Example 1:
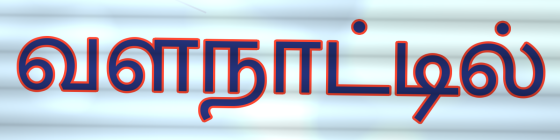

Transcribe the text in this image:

வளநாட்டில்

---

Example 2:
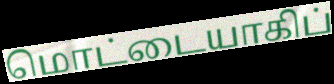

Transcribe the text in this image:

மொட்டையாகிப்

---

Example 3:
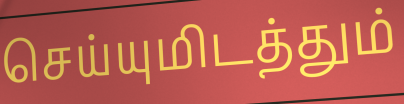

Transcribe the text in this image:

செய்யுமிடத்தும்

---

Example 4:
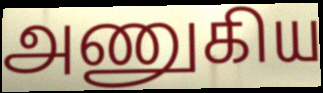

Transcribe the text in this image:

அணுகிய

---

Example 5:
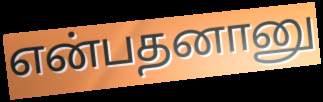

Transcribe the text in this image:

என்பதனானு